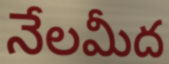
నేలమీద